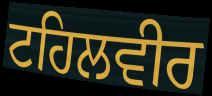
ਟਹਿਲਵੀਰ